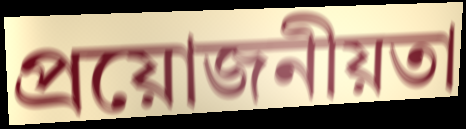
প্রয়োজনীয়তা